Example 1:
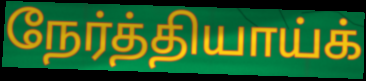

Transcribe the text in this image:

நேர்த்தியாய்க்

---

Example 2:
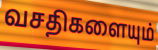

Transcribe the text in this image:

வசதிகளையும்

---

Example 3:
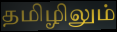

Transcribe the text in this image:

தமிழிலும்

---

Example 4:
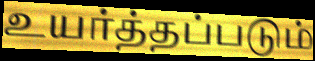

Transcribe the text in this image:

உயர்த்தப்படும்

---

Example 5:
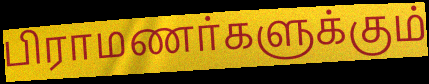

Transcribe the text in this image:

பிராமணர்களுக்கும்